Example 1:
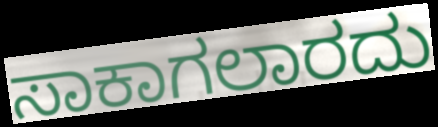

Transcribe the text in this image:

ಸಾಕಾಗಲಾರದು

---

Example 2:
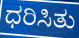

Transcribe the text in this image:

ಧರಿಸಿತು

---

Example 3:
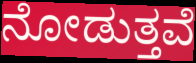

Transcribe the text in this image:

ನೋಡುತ್ತವೆ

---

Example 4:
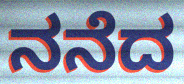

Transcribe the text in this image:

ನನೆದ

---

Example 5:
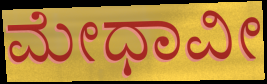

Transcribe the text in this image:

ಮೇಧಾವೀ